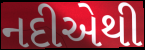
નદીએથી